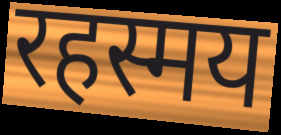
रहस्मय